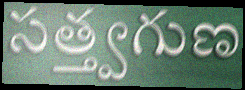
సత్త్వగుణ